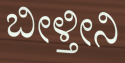
ಬೀಳ್ತೀನಿ